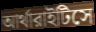
আর্থারাইটিসে